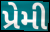
પ્રેમી